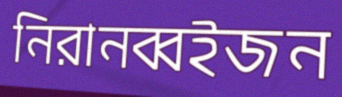
নিরানব্বইজন